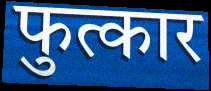
फुत्कार